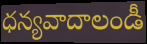
ధన్యవాదాలండీ